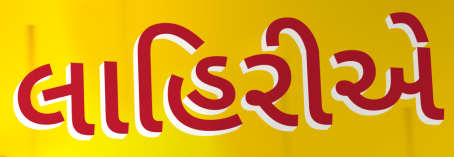
લાહિરીએ